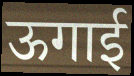
ऊगाई